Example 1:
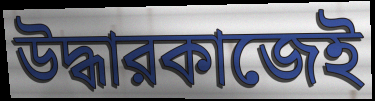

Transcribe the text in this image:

উদ্ধারকাজেই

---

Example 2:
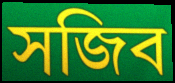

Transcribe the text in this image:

সজিব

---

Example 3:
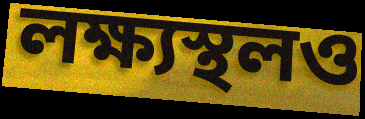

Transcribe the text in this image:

লক্ষ্যস্থলও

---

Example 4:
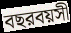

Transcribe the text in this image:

বছরবয়সী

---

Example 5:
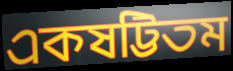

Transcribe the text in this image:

একষট্টিতম